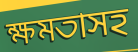
ক্ষমতাসহ